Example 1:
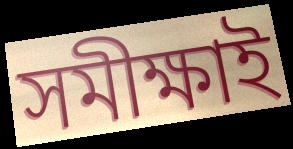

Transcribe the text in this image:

সমীক্ষাই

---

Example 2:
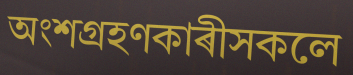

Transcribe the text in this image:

অংশগ্ৰহণকাৰীসকলে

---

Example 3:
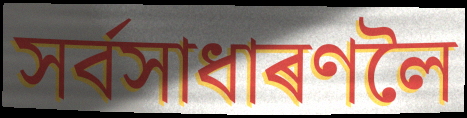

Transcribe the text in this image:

সৰ্বসাধাৰণলৈ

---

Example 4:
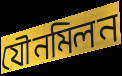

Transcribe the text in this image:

যৌনমিলন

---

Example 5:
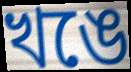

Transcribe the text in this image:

খঙে